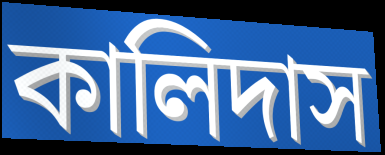
কালিদাস